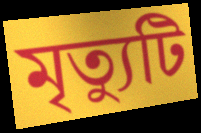
মৃত্যুটি